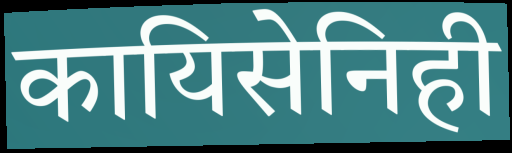
कायिसेनिही